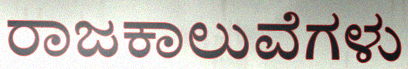
ರಾಜಕಾಲುವೆಗಳು